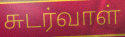
சுடர்வாள்